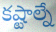
కష్టాల్నే